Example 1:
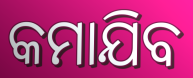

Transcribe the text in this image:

କମାଯିବ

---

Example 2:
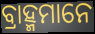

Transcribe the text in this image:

ବ୍ରାହ୍ମମାନେ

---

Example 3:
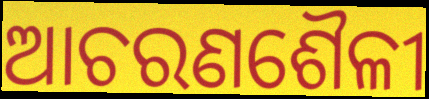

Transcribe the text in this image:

ଆଚରଣଶୈଳୀ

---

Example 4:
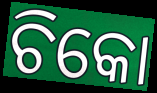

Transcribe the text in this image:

ଚିକୋ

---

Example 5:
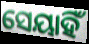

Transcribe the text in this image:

ସେୟାହିଁ